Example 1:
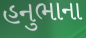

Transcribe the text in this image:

હનુભાના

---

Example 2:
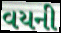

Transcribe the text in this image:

વયની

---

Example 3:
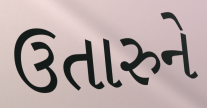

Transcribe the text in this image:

ઉતારુને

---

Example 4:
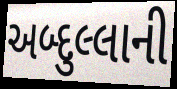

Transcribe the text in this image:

અબ્દુલ્લાની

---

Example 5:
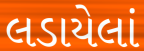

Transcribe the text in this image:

લડાયેલાં